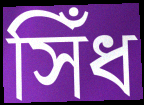
সিঁধ